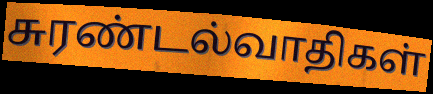
சுரண்டல்வாதிகள்